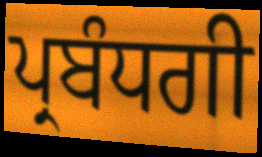
ਪ੍ਰਬੰਧਗੀ